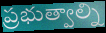
ప్రభుత్వాల్ని